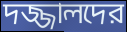
দজ্জালদের